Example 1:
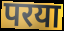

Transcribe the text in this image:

परया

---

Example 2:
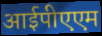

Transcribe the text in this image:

आईपीएएम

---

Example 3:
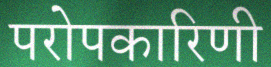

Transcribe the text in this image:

परोपकारिणी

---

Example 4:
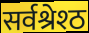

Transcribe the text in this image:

सर्वश्रेश्ठ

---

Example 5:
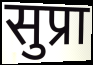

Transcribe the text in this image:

सुप्रा